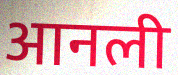
आनली